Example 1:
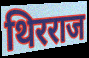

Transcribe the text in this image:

थिरराज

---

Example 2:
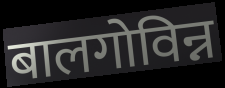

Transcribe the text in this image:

बालगोविन्न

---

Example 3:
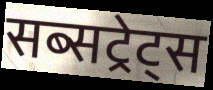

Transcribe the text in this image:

सब्सट्रेट्स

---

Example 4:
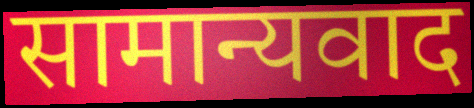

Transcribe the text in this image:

सामान्यवाद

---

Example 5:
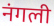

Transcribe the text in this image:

नंगली